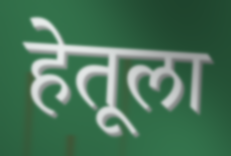
हेतूला